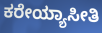
ಕರೇಯ್ಯಾಸೀತಿ